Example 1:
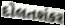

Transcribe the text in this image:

દોલતશંકર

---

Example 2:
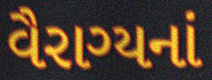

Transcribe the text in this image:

વૈરાગ્યનાં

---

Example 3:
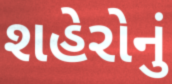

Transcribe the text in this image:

શહેરોનું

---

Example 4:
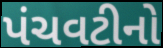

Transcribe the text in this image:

પંચવટીનો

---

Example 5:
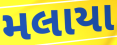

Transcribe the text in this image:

મલાયા